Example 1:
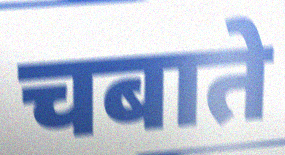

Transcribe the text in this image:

चबाते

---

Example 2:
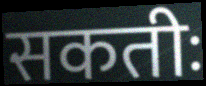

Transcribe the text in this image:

सकतीः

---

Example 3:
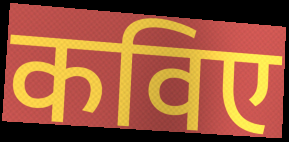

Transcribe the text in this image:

कविए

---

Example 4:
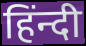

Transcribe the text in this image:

हिंन्दी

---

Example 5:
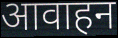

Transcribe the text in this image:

आवाहन